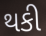
થકી